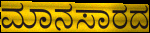
ಮಾನಸಾರದ